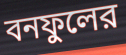
বনফুলের